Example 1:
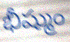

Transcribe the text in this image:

భీష్ముం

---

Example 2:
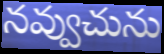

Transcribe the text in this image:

నవ్వుచును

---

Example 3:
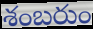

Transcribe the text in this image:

శంబరుం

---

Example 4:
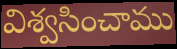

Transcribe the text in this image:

విశ్వసించాము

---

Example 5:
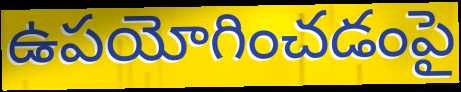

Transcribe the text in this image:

ఉపయోగించడంపై